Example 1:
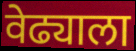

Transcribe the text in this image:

वेढ्याला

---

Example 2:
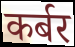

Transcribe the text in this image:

कर्बर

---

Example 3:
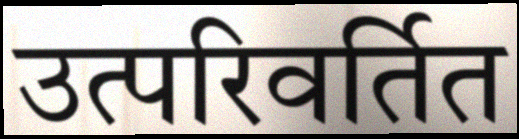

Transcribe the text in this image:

उत्परिवर्तित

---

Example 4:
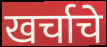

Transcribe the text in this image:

खर्चाचे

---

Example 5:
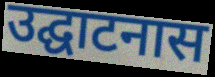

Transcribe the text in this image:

उद्घाटनास